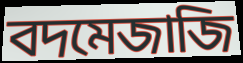
বদমেজাজি